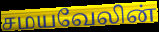
சமயவேலின்